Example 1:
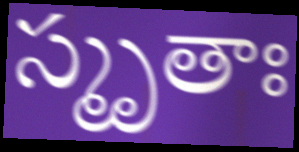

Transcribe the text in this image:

స్మృతాః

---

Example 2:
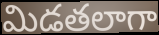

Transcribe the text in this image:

మిడతలాగా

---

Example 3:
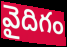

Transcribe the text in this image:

వైదిగం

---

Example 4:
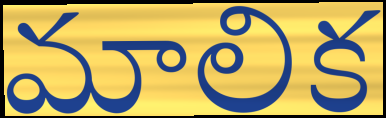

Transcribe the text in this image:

మాలిక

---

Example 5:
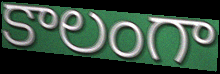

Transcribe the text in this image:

కాలంగా